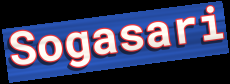
Sogasari